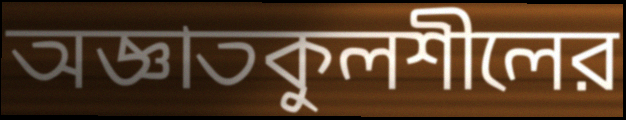
অজ্ঞাতকুলশীলের